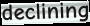
declining